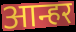
आन्हर